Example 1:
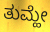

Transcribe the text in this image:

ತುಮ್ಹೇ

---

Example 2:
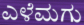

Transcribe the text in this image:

ಎಳೆಮಗು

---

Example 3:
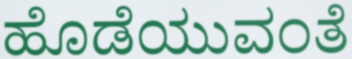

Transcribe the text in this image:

ಹೊಡೆಯುವಂತೆ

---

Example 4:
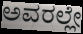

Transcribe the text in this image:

ಅವರಲ್ಲೇ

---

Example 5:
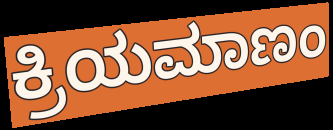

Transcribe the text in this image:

ಕ್ರಿಯಮಾಣಂ